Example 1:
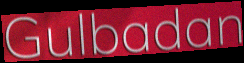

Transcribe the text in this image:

Gulbadan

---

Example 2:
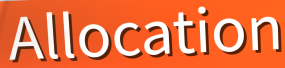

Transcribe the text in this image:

Allocation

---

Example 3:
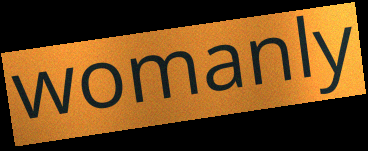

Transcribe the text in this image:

womanly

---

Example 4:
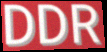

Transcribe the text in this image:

DDR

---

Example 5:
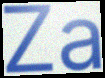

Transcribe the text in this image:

Za